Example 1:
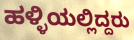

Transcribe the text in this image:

ಹಳ್ಳಿಯಲ್ಲಿದ್ದರು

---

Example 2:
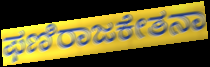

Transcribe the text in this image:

ಫಣಿರಾಜಕೇತನಾ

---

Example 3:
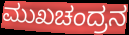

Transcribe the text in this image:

ಮುಖಚಂದ್ರನ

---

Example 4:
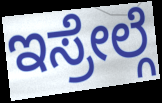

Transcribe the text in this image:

ಇಸ್ರೇಲ್ಗೆ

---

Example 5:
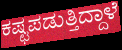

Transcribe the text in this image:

ಕಷ್ಟಪಡುತ್ತಿದ್ದಾಳೆ